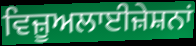
ਵਿਜ਼ੂਅਲਾਈਜ਼ੇਸ਼ਨਾਂ